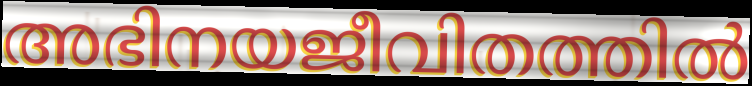
അഭിനയജീവിതത്തിൽ